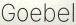
Goebel